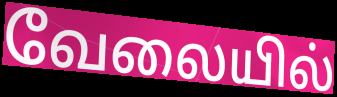
வேலையில்